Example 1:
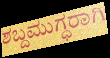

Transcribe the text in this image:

ಶಬ್ದಮುಗ್ಧರಾಗಿ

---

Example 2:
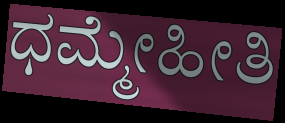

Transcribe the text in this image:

ಧಮ್ಮೇಹೀತಿ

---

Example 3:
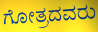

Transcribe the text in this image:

ಗೋತ್ರದವರು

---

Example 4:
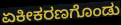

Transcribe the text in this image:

ಏಕೀಕರಣಗೊಂಡು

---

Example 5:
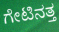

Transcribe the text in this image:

ಗೇಟಿನತ್ತ